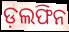
ଡ଼ଲଫିନ